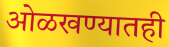
ओळखण्यातही